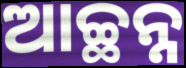
ଆଚ୍ଛନ୍ନ